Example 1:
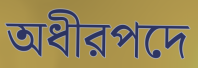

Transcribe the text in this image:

অধীরপদে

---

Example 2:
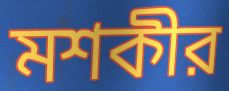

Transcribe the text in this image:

মশকীর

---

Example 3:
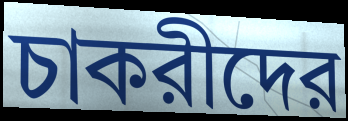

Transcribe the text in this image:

চাকরীদের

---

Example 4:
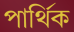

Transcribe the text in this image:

পার্থিক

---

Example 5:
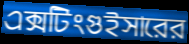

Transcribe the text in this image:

এক্সটিংগুইসারের